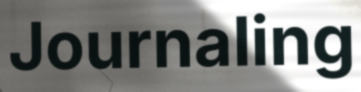
Journaling